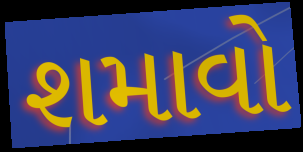
શમાવો